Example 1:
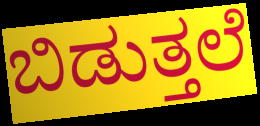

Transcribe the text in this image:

ಬಿಡುತ್ತಲೆ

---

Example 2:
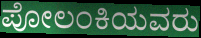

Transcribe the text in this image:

ಪೋಲಂಕಿಯವರು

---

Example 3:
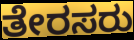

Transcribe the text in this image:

ತೇರಸರು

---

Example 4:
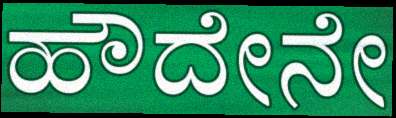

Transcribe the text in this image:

ಹೌದೇನೇ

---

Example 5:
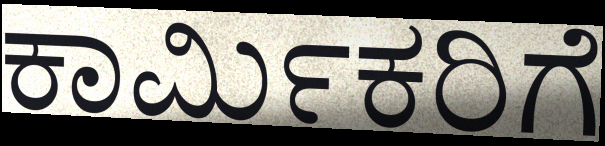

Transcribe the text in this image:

ಕಾರ್ಮಿಕರಿಗೆ